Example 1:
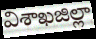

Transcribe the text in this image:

విశాఖజిల్లా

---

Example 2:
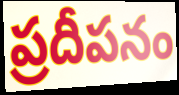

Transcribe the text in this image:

ప్రదీపనం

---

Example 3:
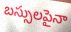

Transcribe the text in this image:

బస్సులపైనా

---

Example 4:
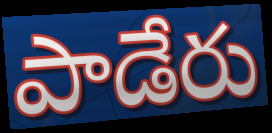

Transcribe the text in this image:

పాడేరు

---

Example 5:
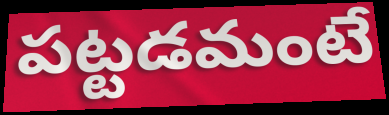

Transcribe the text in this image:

పట్టడమంటే